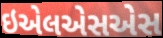
ઇએલએસએસ